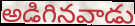
అడిగినవాడు